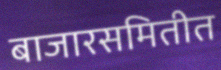
बाजारसमितीत